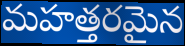
మహత్తరమైన